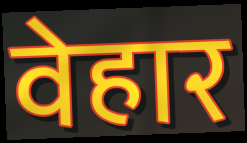
वेहार